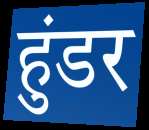
हुंडर